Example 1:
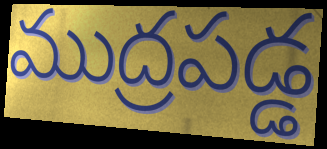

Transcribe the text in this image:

ముద్రపడ్డ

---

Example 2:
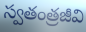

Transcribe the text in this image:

స్వతంత్రజీవి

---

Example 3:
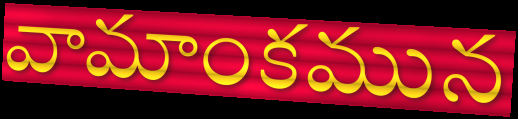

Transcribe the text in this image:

వామాంకమున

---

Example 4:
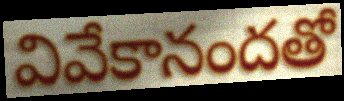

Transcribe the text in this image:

వివేకానందతో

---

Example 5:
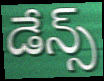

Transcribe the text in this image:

డేన్స్